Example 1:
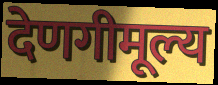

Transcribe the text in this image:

देणगीमूल्य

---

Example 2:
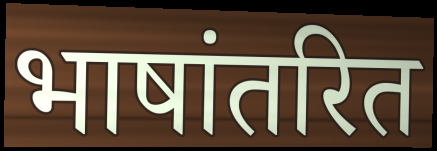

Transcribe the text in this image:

भाषांतरित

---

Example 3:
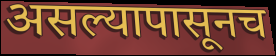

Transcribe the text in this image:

असल्यापासूनच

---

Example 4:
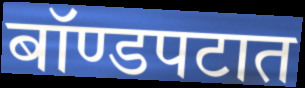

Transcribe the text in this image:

बॉण्डपटात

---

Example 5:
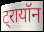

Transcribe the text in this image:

ट्रायॉन